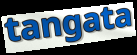
tangata